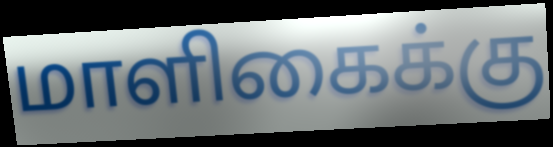
மாளிகைக்கு